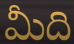
మీది